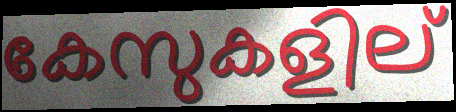
കേസുകളില്